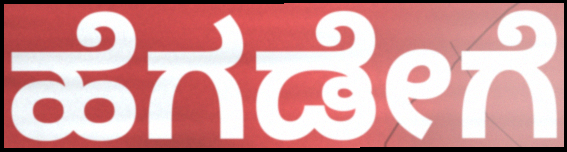
ಹೆಗಡೇಗೆ